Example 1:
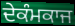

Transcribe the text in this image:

ਦੇਕੰਮਕਾਜ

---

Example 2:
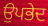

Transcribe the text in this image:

ਉਪਭੇਦ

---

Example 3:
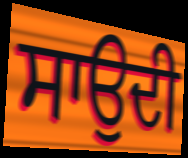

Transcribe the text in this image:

ਸਾਉਦੀ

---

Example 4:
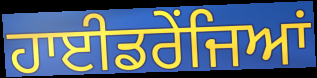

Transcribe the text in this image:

ਹਾਈਡਰੇਂਜਿਆਂ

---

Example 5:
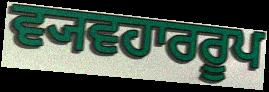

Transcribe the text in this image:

ਵ੍ਯਵਹਾਰਰੂਪ